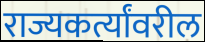
राज्यकर्त्यांवरील